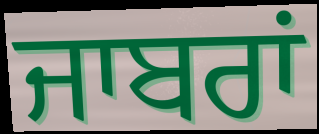
ਜਾਬਰਾਂ